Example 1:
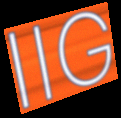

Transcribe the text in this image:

IIG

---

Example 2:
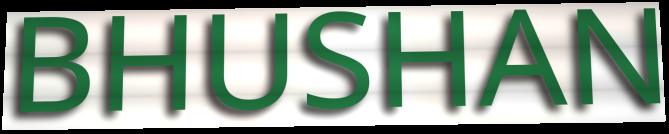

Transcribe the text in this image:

BHUSHAN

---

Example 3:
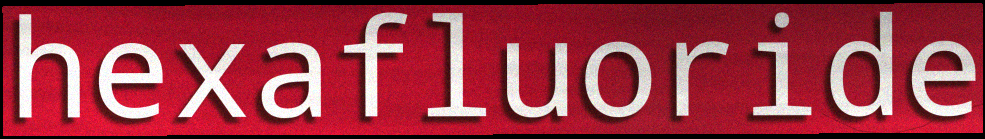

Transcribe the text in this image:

hexafluoride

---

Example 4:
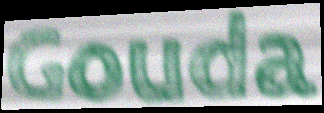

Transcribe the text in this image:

Gouda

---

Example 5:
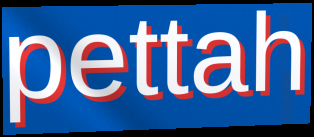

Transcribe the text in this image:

pettah